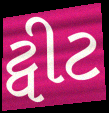
ટ્વીટ